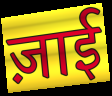
ज़ाई